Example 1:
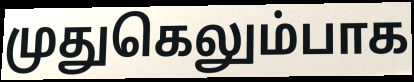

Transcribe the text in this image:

முதுகெலும்பாக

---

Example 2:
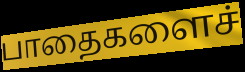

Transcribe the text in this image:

பாதைகளைச்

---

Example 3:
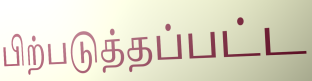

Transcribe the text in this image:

பிற்படுத்தப்பட்ட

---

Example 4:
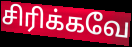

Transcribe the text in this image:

சிரிக்கவே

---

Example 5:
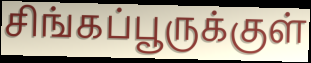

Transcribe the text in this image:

சிங்கப்பூருக்குள்